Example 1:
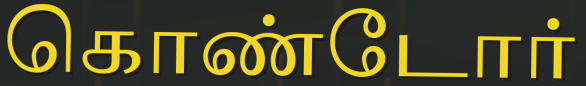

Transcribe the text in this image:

கொண்டோர்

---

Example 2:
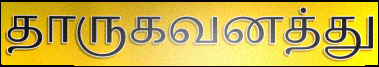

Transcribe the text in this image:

தாருகவனத்து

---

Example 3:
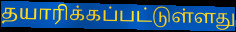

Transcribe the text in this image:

தயாரிக்கப்பட்டுள்ளது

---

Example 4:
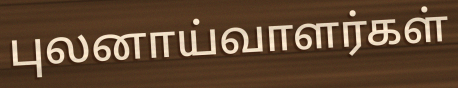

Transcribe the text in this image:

புலனாய்வாளர்கள்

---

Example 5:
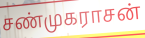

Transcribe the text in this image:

சண்முகராசன்